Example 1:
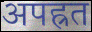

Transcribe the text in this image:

अपह्रत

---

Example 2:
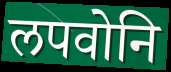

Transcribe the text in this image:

लपवोनि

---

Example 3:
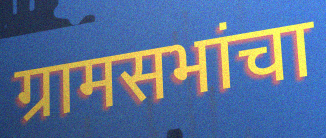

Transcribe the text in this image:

ग्रामसभांचा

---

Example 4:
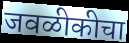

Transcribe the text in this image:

जवळीकीचा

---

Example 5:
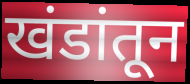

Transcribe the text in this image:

खंडांतून